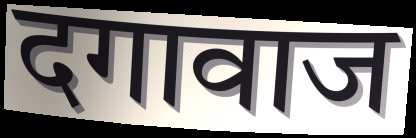
दगावाज